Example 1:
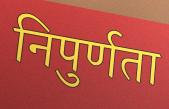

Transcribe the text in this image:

निपुर्णता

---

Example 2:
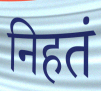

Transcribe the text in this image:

निहतं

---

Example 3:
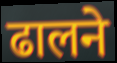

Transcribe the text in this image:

ढालने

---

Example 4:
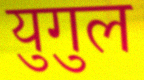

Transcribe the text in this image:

युगुल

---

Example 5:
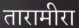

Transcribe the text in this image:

तारामीरा